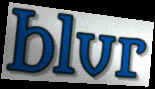
blur